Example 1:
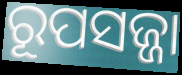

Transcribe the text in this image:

ରୂପସଜ୍ଜା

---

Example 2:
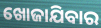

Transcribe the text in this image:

ଖୋଜାଯିବାର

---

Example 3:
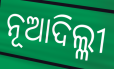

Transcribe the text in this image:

ନୂଆଦିଲ୍ଳୀ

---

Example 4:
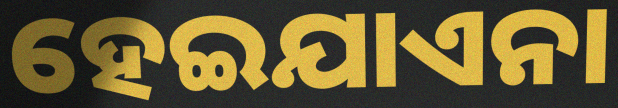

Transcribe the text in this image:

ହେଇଯାଏନା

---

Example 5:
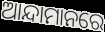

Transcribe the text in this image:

ଆନ୍ଦାମାନରେ